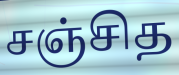
சஞ்சித